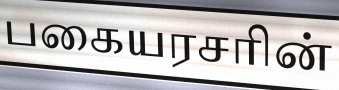
பகையரசரின்